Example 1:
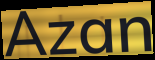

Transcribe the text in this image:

Azan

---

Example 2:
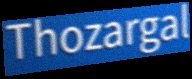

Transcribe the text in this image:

Thozargal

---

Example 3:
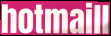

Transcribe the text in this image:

hotmaill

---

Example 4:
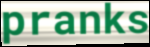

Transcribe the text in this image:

pranks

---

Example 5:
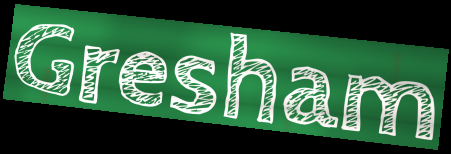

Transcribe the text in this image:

Gresham